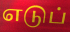
எடுப்